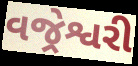
વજ્રેશ્વરી